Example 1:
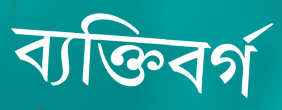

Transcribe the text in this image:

ব্যক্তিবর্গ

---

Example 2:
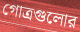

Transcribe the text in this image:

গোত্রগুলোর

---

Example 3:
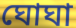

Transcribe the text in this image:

ঘোঘা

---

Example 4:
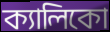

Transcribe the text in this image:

ক্যালিকো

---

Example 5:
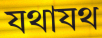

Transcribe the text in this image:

যথাযথ